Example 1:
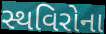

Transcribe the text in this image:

સ્થવિરોના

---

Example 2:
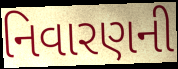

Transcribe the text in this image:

નિવારણની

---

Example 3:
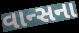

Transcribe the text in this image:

વાન્સના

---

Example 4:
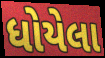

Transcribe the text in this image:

ધોયેલા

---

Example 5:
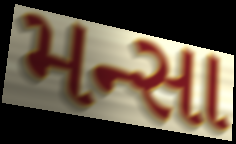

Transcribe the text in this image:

મન્સા